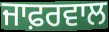
ਜਾਫ਼ਰਵਾਲ